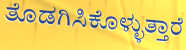
ತೊಡಗಿಸಿಕೊಳ್ಳುತ್ತಾರೆ